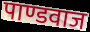
पाण्डवाज